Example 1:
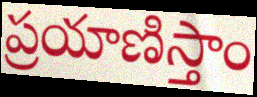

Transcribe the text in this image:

ప్రయాణిస్తాం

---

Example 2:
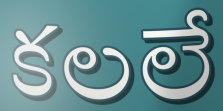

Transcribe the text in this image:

కలలే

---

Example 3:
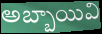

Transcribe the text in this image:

అబ్బాయివి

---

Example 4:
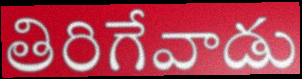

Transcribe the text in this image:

తిరిగేవాడు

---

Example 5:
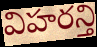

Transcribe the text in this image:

విహరన్తి